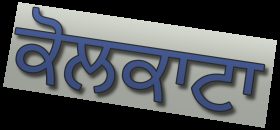
ਕੋਲਕਾਟਾ